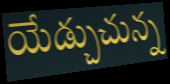
యేడ్చుచున్న